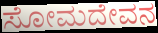
ಸೋಮದೇವನ